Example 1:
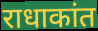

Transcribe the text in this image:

राधाकांत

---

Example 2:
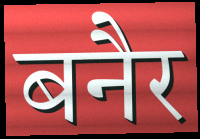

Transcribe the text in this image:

बनैर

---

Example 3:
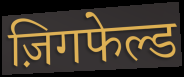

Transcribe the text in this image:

ज़िगफेल्ड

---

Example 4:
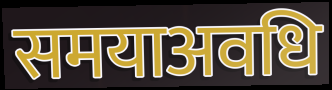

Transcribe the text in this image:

समयाअवधि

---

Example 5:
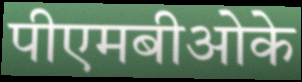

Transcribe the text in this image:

पीएमबीओके